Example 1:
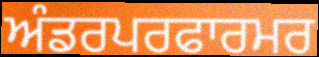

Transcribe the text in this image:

ਅੰਡਰਪਰਫਾਰਮਰ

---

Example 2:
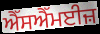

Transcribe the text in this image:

ਐੱਸਐੱਮਈਜ਼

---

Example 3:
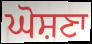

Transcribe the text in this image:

ਘੋਸ਼ਣਾ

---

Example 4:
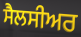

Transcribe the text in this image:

ਸੈਲਸੀਅਰ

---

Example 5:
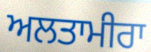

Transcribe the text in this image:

ਅਲਤਾਮੀਰਾ